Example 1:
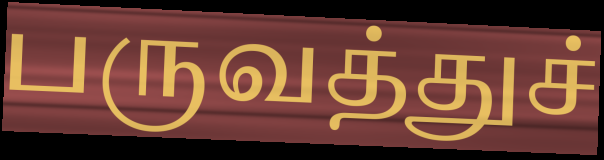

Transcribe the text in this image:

பருவத்துச்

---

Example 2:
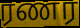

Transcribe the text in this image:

ரணர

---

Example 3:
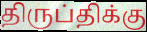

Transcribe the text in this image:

திருப்திக்கு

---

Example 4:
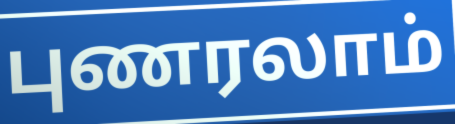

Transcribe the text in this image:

புணரலாம்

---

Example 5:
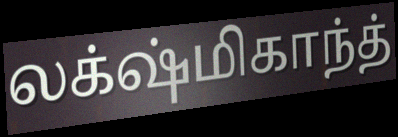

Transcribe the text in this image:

லக்‌ஷ்மிகாந்த்